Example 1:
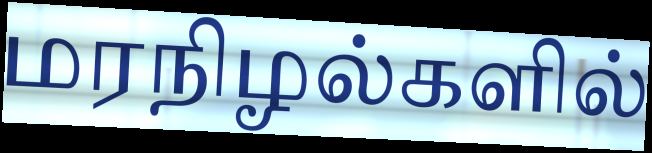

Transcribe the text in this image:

மரநிழல்களில்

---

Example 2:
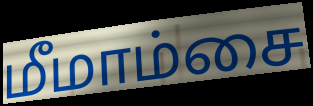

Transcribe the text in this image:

மீமாம்சை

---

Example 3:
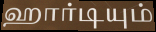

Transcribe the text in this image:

ஹார்டியும்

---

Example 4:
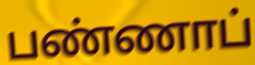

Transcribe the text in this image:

பண்ணாப்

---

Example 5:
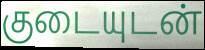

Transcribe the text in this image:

குடையுடன்